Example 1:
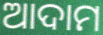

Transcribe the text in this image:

ଆଦାମ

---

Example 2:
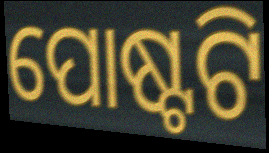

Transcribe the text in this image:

ପୋଷ୍ଟଟି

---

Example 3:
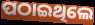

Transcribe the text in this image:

ପଠାଇଥିଲେ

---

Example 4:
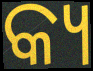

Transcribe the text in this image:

କ୍ୟ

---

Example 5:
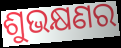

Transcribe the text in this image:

ଶୁଭକ୍ଷଣର